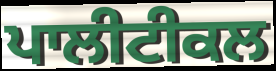
ਪਾਲੀਟੀਕਲ